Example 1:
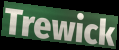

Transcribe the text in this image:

Trewick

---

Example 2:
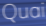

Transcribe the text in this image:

Quai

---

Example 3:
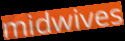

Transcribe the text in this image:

midwives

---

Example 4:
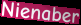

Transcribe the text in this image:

Nienaber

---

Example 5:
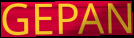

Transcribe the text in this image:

GEPAN